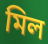
মিল